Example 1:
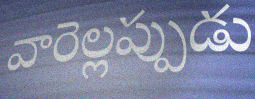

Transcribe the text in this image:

వారెల్లప్పుడు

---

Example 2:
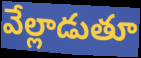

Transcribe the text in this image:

వేల్లాడుతూ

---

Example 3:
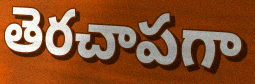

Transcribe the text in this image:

తెరచాపగా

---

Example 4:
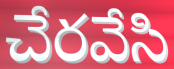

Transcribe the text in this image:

చేరవేసి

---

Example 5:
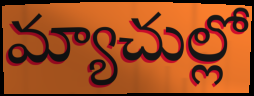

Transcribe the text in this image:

మ్యాచుల్లో